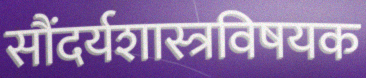
सौंदर्यशास्त्रविषयक